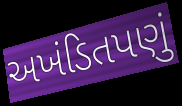
અખંડિતપણું